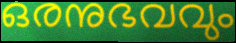
ഒരനുഭവവും